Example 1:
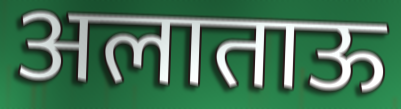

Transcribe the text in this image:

अलाताऊ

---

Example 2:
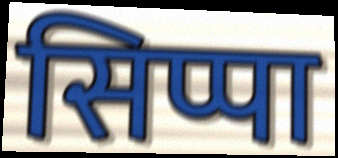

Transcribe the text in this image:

सिप्पा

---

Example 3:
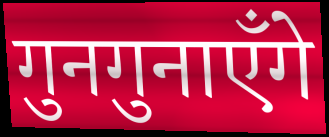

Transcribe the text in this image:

गुनगुनाएँगे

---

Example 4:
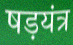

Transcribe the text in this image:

षड़यंत्र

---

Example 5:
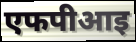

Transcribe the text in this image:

एफपीआइ